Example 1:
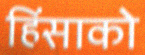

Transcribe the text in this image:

हिंसाको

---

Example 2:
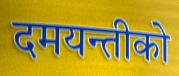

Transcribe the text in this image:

दमयन्तीको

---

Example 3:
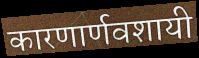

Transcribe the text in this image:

कारणार्णवशायी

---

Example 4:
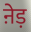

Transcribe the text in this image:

ऩेड़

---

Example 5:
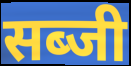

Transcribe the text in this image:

सब्जी